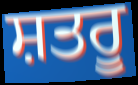
ਸ਼ਤਰੂ